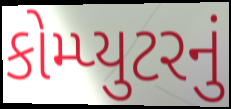
કોમ્પ્યુટરનું